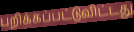
பறிக்கப்பட்டுவிட்டது